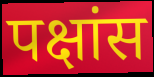
पक्षांस